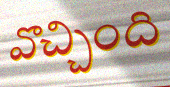
వొచ్చింది